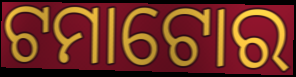
ଟମାଟୋର